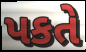
પકતે